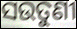
ସଉତୁଣୀ